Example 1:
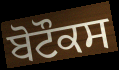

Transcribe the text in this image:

ਬੋਟੌਕਸ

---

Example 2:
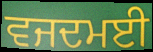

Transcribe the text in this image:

ਵਜਦਮਈ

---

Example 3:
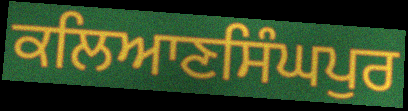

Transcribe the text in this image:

ਕਲਿਆਣਸਿੰਘਪੁਰ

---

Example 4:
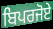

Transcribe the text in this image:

ਬਿਪਰਜੋਏ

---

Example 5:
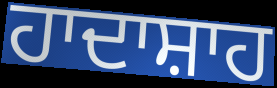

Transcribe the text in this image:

ਹਾਦਾਸ਼ਾਹ